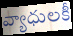
వ్యాధులకీ